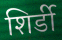
शिर्डी